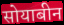
सोयाबीन